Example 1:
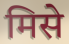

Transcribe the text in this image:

मिसे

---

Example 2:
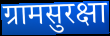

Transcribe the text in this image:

ग्रामसुरक्षा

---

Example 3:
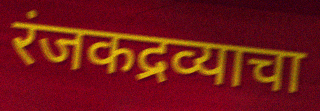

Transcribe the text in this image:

रंजकद्रव्याचा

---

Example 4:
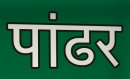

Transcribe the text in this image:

पांढर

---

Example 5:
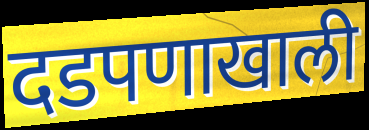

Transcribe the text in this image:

दडपणाखाली